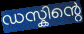
ഡസ്കിന്റെ